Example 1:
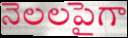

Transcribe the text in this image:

నెలలపైగా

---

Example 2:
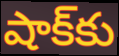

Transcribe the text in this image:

షాక్‌కు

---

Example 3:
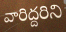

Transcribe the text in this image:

వారిద్దరిని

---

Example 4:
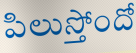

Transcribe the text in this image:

పిలుస్తోందో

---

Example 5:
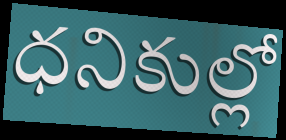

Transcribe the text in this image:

ధనికుల్లో